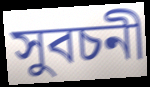
সুবচনী